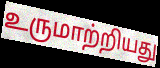
உருமாற்றியது